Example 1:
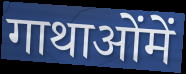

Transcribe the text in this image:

गाथाओंमें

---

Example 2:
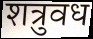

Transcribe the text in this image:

शत्रुवध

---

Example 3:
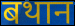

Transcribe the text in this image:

बथान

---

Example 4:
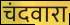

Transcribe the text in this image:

चंदवारा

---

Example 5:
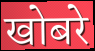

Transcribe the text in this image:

खोबरे